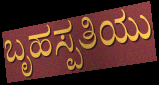
ಬೃಹಸ್ಪತಿಯು